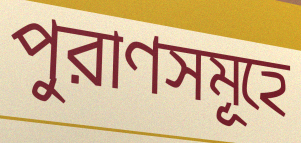
পুরাণসমূহে